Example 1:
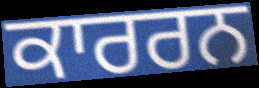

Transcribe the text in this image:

ਕਾਰਰਨ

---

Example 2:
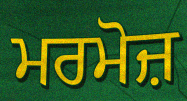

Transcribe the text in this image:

ਮਰਮੋਜ਼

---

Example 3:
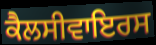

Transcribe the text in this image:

ਕੈਲਸੀਵਾਇਰਸ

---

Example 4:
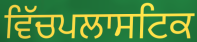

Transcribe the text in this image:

ਵਿੱਚਪਲਾਸਟਿਕ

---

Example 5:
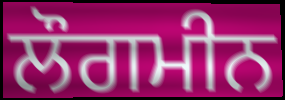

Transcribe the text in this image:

ਲੌਗਮੀਨ